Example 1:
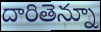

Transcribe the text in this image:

దారితెన్నూ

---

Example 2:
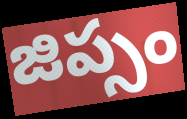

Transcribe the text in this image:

జిప్సం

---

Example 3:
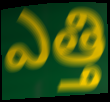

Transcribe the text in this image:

ఎత్తి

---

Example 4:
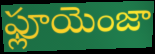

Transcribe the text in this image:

ఫ్లూయెంజా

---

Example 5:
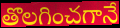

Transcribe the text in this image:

తొలగించగానే